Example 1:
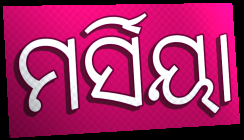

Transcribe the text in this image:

ମର୍ସିୟା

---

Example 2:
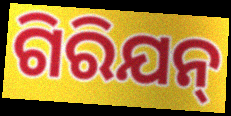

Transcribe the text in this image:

ଗିରିଯନ୍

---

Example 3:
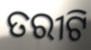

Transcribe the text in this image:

ତରୀଟି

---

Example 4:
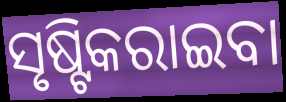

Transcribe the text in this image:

ସୃଷ୍ଟିକରାଇବା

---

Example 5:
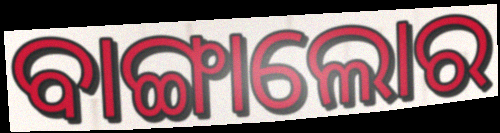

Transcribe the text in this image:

ବାଙ୍ଗାଲୋର